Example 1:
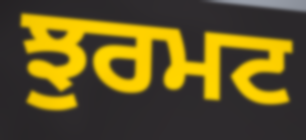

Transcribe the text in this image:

ਝੁਰਮਟ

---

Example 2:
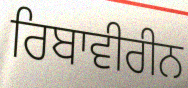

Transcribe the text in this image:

ਰਿਬਾਵੀਰੀਨ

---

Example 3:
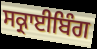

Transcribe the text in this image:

ਸਕ੍ਰਾਈਬਿੰਗ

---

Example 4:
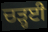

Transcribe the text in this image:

ਚੜ੍ਹਈ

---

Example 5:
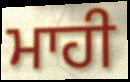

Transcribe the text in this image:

ਮਾਹੀ